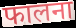
फालना